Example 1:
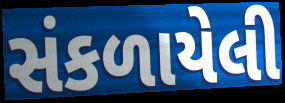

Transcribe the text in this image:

સંકળાયેલી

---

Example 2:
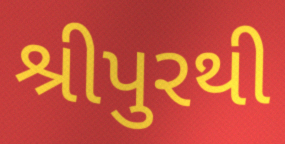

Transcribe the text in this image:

શ્રીપુરથી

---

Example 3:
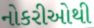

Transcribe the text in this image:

નોકરીઓથી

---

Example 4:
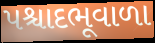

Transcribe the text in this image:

પશ્ચાદભૂવાળા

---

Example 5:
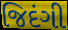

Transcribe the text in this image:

જિદંગી